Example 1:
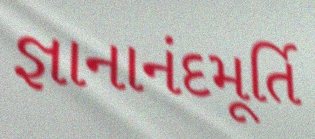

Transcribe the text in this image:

જ્ઞાનાનંદમૂર્તિ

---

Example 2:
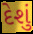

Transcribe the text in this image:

દેશું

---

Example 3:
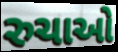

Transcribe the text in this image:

રુચાઓ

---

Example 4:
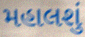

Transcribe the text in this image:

મહાલશું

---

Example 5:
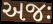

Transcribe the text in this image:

અજઃ